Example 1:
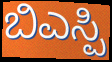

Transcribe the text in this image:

ಬಿಎಸ್ಪಿ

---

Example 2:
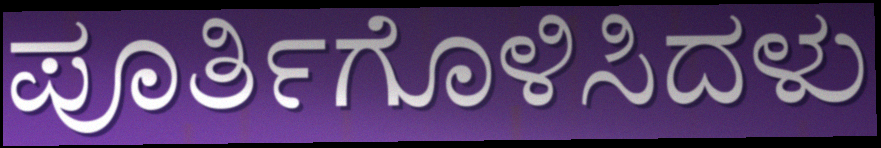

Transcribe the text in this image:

ಪೂರ್ತಿಗೊಳಿಸಿದಳು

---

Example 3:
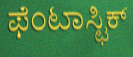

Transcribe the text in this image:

ಫೆಂಟಾಸ್ಟಿಕ್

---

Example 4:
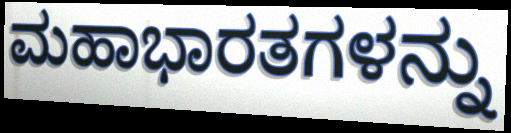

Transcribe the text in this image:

ಮಹಾಭಾರತಗಳನ್ನು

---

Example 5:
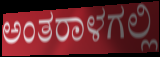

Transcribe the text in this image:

ಅಂತರಾಳಗಲ್ಲಿ